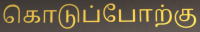
கொடுப்போற்கு